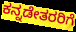
ಕನ್ನಡೇತರರಿಗೆ